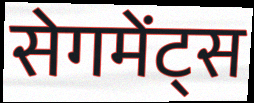
सेगमेंट्स